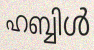
ഹബ്ബിൾ